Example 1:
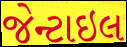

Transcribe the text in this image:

જેન્ટાઇલ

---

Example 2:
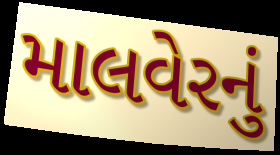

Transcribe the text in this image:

માલવેરનું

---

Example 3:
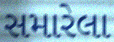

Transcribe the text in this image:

સમારેલા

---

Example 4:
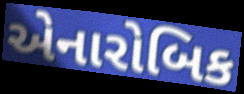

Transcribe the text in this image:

એનારોબિક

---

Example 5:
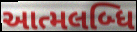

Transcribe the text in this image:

આત્મલબ્ધિ